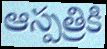
ఆస్పత్రికి